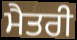
ਮੈਤਰੀ